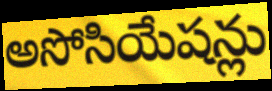
అసోసియేషన్లు